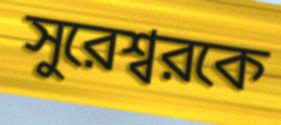
সুরেশ্বরকে